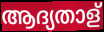
ആദ്യതാള്